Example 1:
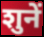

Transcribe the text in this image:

शुनें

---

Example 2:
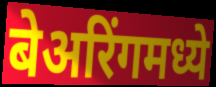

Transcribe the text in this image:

बेअरिंगमध्ये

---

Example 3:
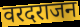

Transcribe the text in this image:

वरदराजन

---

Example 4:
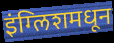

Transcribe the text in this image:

इंग्लिशमधून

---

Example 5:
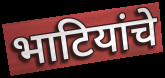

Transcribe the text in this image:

भाटियांचे